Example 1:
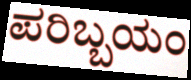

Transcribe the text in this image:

ಪರಿಬ್ಬಯಂ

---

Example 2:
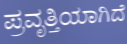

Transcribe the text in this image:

ಪ್ರವೃತ್ತಿಯಾಗಿದೆ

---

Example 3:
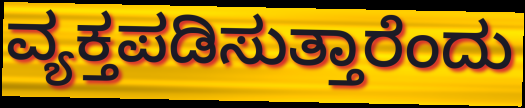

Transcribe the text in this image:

ವ್ಯಕ್ತಪಡಿಸುತ್ತಾರೆಂದು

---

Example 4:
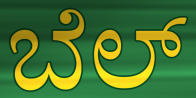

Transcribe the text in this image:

ಬೆಲ್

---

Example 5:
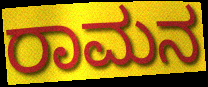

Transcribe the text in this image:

ರಾಮನ